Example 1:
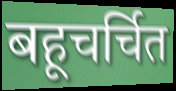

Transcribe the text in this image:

बहूचर्चित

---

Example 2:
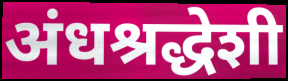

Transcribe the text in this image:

अंधश्रद्धेशी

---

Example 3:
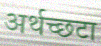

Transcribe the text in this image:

अर्थच्छटा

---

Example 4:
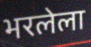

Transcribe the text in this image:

भरलेला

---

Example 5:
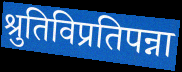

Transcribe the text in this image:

श्रुतिविप्रतिपन्ना